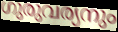
ഗുരുവര്യനും